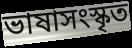
ভাষাসংস্কৃত